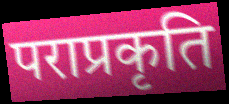
पराप्रकृति